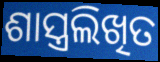
ଶାସ୍ତ୍ରଲିଖିତ